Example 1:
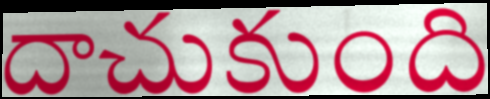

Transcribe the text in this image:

దాచుకుంది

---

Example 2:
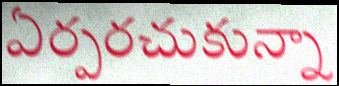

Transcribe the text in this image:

ఏర్పరచుకున్నా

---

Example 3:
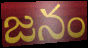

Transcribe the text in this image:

జనం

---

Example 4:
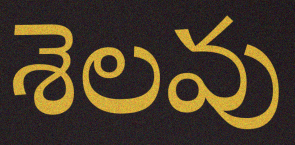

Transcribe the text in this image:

శెలవు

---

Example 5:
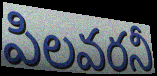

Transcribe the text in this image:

పిలవరనీ